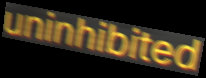
uninhibited